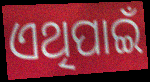
ଏଥିପାଇଁ